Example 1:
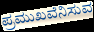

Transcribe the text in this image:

ಪ್ರಮುಖವೆನಿಸುವ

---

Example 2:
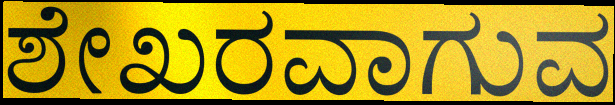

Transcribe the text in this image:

ಶೇಖರವಾಗುವ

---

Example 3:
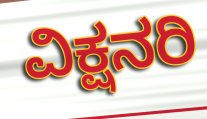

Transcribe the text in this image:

ವಿಕ್ಷನರಿ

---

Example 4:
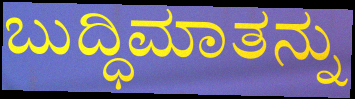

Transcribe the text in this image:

ಬುದ್ಧಿಮಾತನ್ನು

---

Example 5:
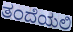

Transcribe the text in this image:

ತಂದೆಯಲಿ